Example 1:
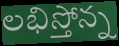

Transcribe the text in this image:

లభిస్తోన్న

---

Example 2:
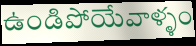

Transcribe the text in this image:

ఉండిపోయేవాళ్ళం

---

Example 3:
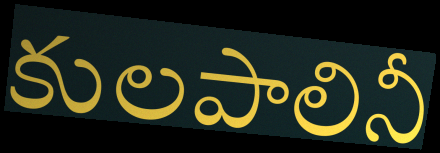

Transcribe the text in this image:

కులపాలినీ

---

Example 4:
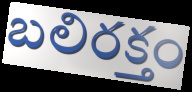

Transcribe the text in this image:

బలిరక్తం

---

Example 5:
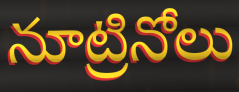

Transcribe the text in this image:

నూట్రినోలు